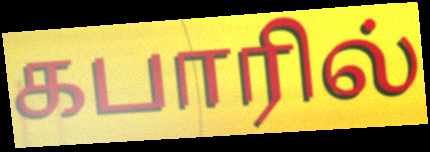
கபாரில்